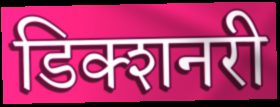
डिक्शनरी